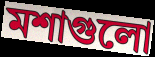
মশাগুলো